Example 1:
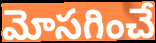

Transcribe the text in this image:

మోసగించే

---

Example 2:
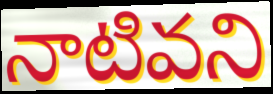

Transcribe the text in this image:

నాటివని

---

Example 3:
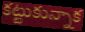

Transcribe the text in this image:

కట్టుకున్నాక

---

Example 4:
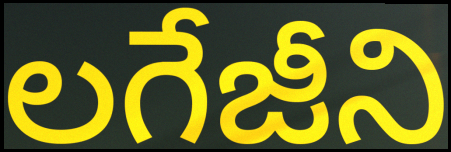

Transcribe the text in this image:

లగేజీని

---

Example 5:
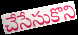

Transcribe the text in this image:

చేసేసుకొని